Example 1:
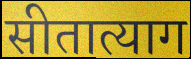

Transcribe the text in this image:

सीतात्याग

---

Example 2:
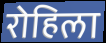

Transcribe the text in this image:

रोहिला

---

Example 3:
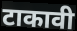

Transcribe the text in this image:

टाकावी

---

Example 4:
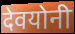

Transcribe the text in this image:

देवयोनी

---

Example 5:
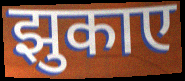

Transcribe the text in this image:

झुकाए